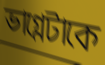
ভাগ্নেটাকে